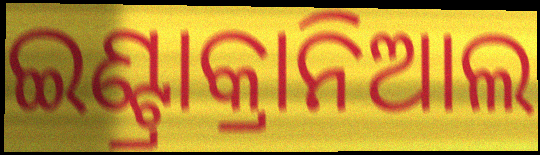
ଇଣ୍ଟ୍ରାକ୍ରାନିଆଲ